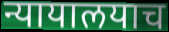
न्यायालयाच